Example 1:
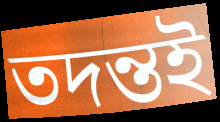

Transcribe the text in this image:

তদন্তই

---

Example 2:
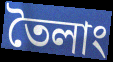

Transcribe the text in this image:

তৈলাং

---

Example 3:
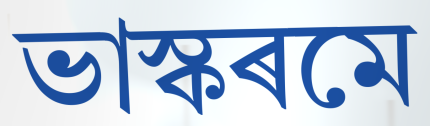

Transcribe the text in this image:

ভাস্কৰমে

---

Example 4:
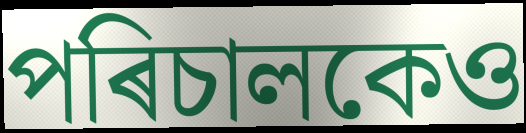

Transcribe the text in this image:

পৰিচালকেও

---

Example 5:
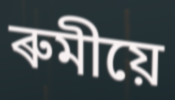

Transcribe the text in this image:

ৰুমীয়ে